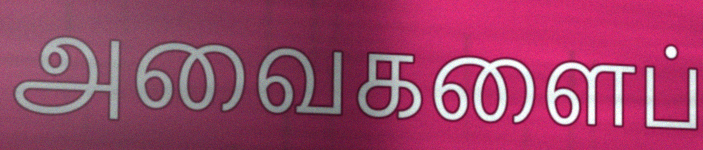
அவைகளைப்